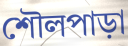
শৌলপাড়া